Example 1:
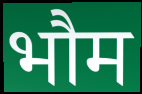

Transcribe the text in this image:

भौम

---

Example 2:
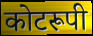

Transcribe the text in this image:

कोटरूपी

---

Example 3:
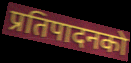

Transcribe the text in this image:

प्रतिपादनको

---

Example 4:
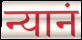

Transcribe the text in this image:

न्यानं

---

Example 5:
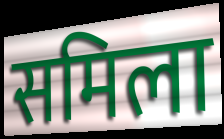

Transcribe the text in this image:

समिला